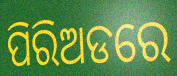
ପିରିଅଡରେ